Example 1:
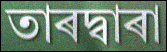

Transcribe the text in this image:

তাৰদ্বাৰা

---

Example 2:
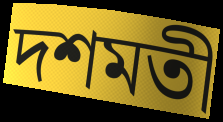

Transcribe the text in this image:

দশমতী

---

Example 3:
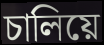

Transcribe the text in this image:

চালিয়ে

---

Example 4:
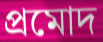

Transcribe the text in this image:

প্ৰমোদ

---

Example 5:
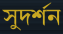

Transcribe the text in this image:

সুদৰ্শন